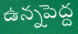
ఉన్నపెద్ద